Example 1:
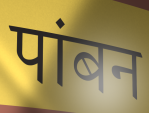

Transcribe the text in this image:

पांबन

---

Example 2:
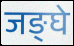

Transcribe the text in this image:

जङ्घे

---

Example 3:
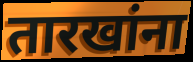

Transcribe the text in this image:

तारखांना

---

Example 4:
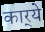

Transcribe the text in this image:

कार्ये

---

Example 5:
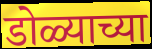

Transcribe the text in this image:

डोळ्याच्या